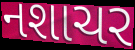
નશાચર